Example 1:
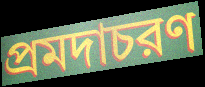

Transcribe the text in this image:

প্রমদাচরণ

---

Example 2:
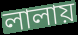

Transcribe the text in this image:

লালায়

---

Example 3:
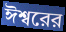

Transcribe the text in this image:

ঈশ্বরের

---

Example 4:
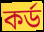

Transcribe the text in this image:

কর্ড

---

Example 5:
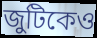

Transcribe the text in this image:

জুটিকেও